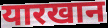
यारखान